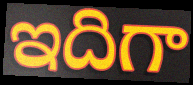
ఇదిగా